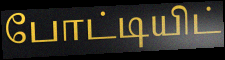
போட்டியிட்